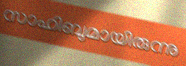
സാഹിബുമായിരുന്നു